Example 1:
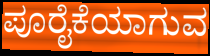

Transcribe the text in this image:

ಪೂರೈಕೆಯಾಗುವ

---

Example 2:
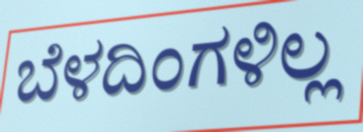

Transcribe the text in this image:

ಬೆಳದಿಂಗಳಿಲ್ಲ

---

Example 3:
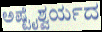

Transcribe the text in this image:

ಅಷ್ಟೈಶ್ವರ್ಯದ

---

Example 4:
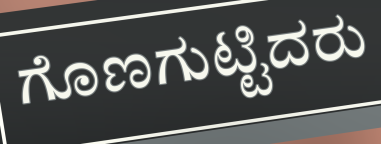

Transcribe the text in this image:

ಗೊಣಗುಟ್ಟಿದರು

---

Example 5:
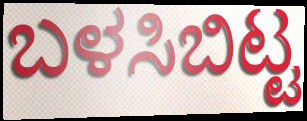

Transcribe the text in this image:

ಬಳಸಿಬಿಟ್ಟ